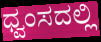
ಧ್ವಂಸದಲ್ಲಿ